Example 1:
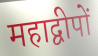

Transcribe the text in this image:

महाद्वीपों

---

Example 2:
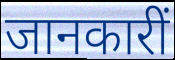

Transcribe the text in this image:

जानकारीं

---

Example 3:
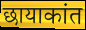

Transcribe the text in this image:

छायाकांत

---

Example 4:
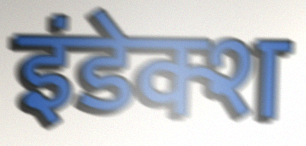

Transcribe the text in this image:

इंडेक्श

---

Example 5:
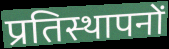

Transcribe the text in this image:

प्रतिस्थापनों